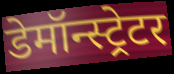
डेमॉन्स्ट्रेटर